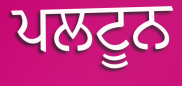
ਪਲਟੂਨ